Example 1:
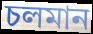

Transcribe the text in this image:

চলমান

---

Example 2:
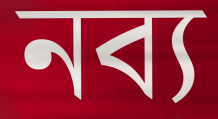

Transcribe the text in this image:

নব্য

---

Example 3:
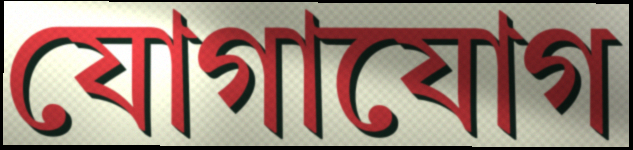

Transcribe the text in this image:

যোগাযোগ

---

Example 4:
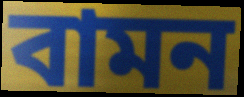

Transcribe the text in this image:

বামন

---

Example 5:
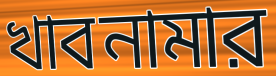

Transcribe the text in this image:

খাবনামার